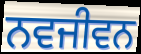
ਨਵਜੀਵਨ